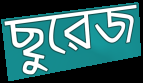
ছুৱেজ